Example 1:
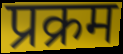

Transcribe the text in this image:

प्रक्रम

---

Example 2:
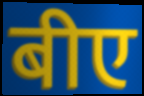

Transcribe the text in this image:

बीए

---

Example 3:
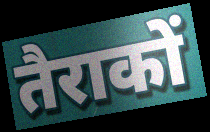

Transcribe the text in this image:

तैराकों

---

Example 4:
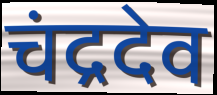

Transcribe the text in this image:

चंद्रदेव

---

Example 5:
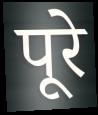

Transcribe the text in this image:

पूरे